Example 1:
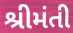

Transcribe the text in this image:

શ્રીમંતી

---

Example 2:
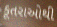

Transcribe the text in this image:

કૂતરાઓથી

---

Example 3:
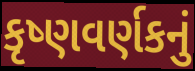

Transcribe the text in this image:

કૃષ્ણવર્ણકનું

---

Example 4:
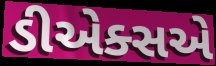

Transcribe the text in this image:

ડીએક્સએ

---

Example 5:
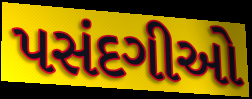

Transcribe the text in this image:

પસંદગીઓ